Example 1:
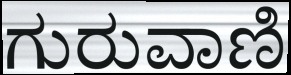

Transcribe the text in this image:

ಗುರುವಾಣಿ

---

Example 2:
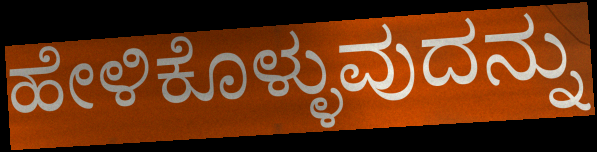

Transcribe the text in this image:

ಹೇಳಿಕೊಳ್ಳುವುದನ್ನು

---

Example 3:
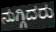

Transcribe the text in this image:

ನುಗ್ಗಿದರು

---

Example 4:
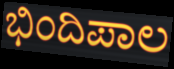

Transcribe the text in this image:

ಭಿಂದಿಪಾಲ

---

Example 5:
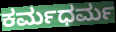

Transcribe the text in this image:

ಕರ್ಮಧರ್ಮ